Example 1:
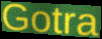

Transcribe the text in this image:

Gotra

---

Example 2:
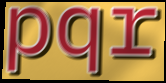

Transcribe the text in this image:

pqr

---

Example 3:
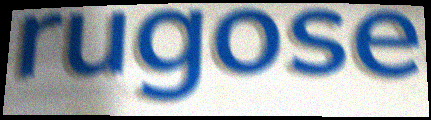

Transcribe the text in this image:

rugose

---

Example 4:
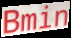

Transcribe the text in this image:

Bmin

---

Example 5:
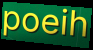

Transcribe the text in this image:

poeih